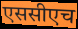
एससीएच